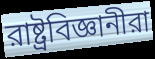
রাষ্ট্রবিজ্ঞানীরা